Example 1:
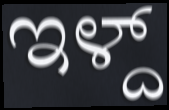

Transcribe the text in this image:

ಇಳ್ದ್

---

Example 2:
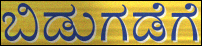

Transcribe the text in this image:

ಬಿಡುಗಡೆಗೆ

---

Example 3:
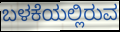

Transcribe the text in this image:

ಬಳಕೆಯಲ್ಲಿರುವ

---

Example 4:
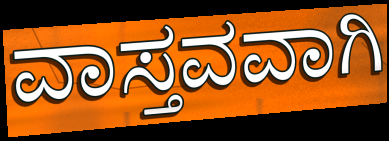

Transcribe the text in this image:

ವಾಸ್ತವವಾಗಿ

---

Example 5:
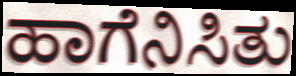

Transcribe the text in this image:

ಹಾಗೆನಿಸಿತು